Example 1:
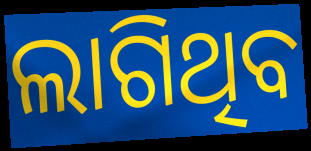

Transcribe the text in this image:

ଲାଗିଥିବ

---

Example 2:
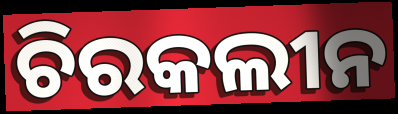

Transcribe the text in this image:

ଚିରକଲୀନ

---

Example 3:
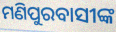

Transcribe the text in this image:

ମଣିପୁରବାସୀଙ୍କ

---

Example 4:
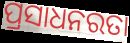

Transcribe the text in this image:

ପ୍ରସାଧନରତା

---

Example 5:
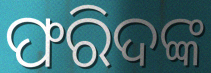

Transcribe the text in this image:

ଫରିଦଙ୍କ